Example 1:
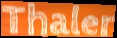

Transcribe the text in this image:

Thaler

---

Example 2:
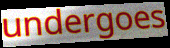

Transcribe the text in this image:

undergoes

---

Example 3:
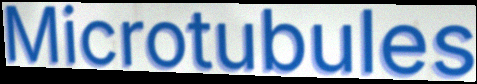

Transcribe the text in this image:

Microtubules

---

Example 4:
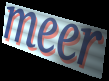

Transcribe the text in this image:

meer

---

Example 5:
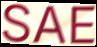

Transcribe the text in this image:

SAE